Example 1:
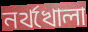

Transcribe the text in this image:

নর্থখোলা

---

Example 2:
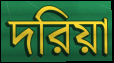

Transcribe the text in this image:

দরিয়া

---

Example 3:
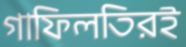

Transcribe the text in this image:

গাফিলতিরই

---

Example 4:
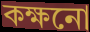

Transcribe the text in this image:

কক্ষনো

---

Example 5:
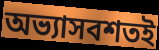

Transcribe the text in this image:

অভ্যাসবশতই